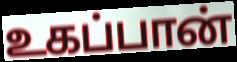
உகப்பான்